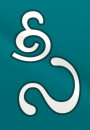
సీ